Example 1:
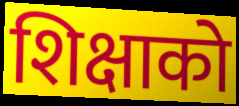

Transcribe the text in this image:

शिक्षाको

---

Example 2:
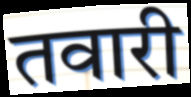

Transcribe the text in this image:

तवारी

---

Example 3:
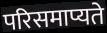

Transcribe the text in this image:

परिसमाप्यते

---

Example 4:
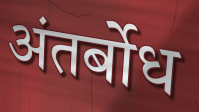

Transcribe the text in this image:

अंतर्बोध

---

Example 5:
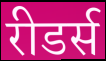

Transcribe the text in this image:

रीडर्स